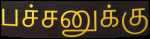
பச்சனுக்கு